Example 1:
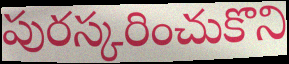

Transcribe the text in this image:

పురస్కరించుకొని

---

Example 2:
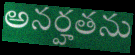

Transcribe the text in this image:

అనర్హతను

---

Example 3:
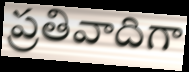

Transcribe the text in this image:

ప్రతివాదిగా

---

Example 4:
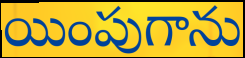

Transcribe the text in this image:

యింపుగాను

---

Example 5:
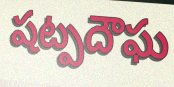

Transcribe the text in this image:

షట్పదౌఘ